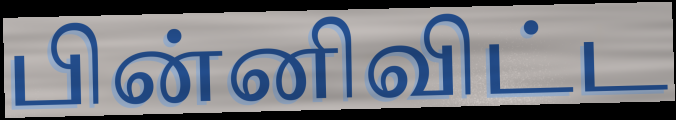
பின்னிவிட்ட